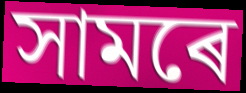
সামৰে